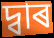
দ্বাৰ